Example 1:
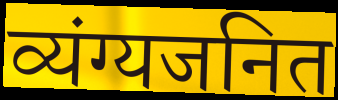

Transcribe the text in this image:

व्यंग्यजनित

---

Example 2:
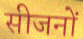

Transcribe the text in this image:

सीजनों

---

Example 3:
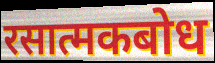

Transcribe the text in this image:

रसात्मकबोध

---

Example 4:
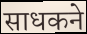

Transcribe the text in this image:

साधकने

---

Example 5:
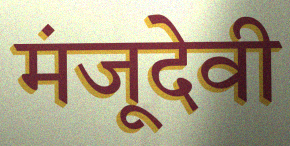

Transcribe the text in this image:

मंजूदेवी